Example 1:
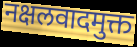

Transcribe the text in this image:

नक्षलवादमुक्त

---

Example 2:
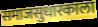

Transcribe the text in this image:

समाजसुधारकाला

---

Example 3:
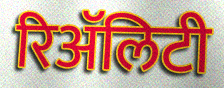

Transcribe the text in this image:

रिॲलिटी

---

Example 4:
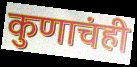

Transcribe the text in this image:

कुणाचंही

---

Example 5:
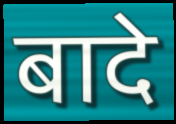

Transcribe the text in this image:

बादे